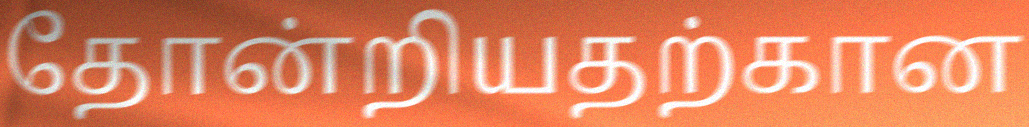
தோன்றியதற்கான